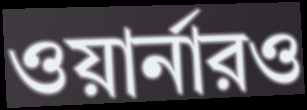
ওয়ার্নারও